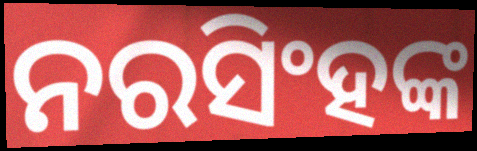
ନରସିଂହଙ୍କ